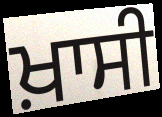
ਖ਼ਾਸੀ